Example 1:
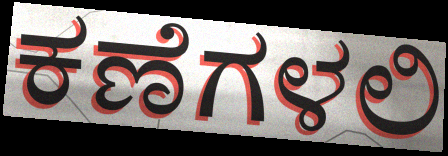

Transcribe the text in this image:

ಕಣೆಗಳಲಿ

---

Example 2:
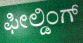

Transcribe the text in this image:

ಫೀಲ್ಡಿಂಗ್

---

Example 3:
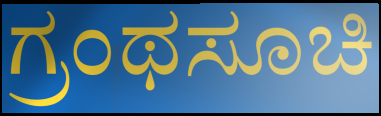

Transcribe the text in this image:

ಗ್ರಂಥಸೂಚಿ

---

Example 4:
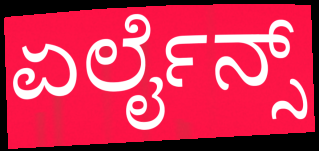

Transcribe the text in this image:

ಏರ್ಲೈನ್ಸ್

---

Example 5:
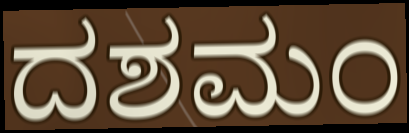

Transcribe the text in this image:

ದಶಮಂ